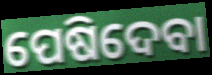
ପେଷିଦେବା